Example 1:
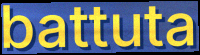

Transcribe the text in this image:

battuta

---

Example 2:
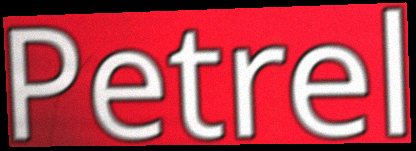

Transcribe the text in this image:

Petrel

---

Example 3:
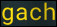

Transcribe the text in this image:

gach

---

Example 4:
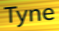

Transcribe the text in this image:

Tyne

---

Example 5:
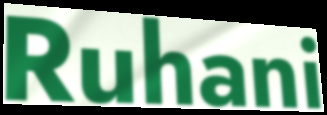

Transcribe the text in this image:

Ruhani